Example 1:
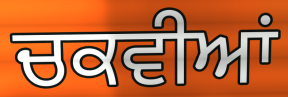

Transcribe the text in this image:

ਚਕਵੀਆਂ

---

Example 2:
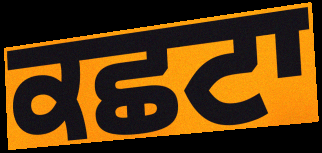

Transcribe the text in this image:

ਕਛਟਾ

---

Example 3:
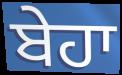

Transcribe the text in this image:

ਬੇਹਾ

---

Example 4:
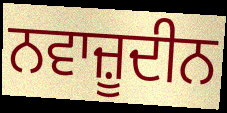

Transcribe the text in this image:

ਨਵਾਜ਼ੂਦੀਨ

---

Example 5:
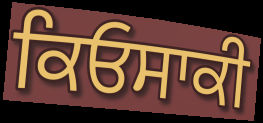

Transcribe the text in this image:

ਕਿਓਸਾਕੀ